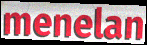
menelan